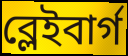
ব্লেইবার্গ